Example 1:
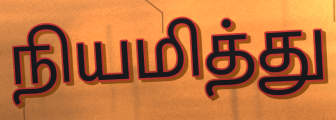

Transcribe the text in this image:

நியமித்து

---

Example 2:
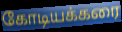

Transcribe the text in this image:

கோடியக்கரை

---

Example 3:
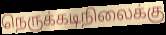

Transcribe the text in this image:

நெருக்கடிநிலைக்கு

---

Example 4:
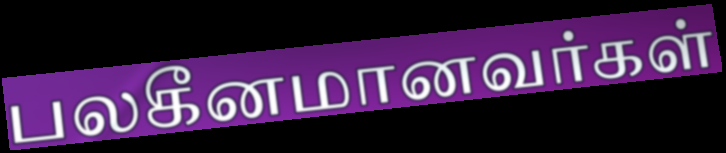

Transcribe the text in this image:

பலகீனமானவர்கள்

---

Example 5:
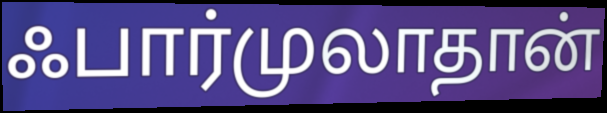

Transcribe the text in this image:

ஃபார்முலாதான்